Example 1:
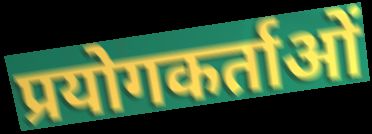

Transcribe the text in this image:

प्रयोगकर्ताओं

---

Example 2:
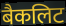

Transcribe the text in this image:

बैकलिट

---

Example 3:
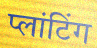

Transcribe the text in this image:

प्लांटिंग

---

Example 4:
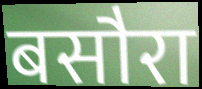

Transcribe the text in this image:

बसौरा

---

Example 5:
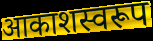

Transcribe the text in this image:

आकाशस्वरूप